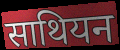
साथियन